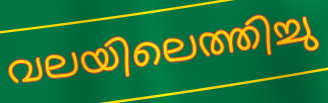
വലയിലെത്തിച്ചു